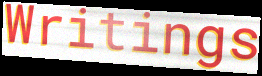
Writings